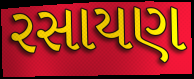
રસાયણ